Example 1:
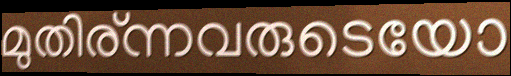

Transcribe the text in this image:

മുതിര്ന്നവരുടെയോ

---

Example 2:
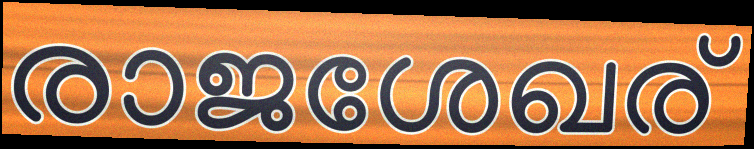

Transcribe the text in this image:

രാജശേഖര്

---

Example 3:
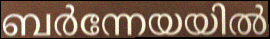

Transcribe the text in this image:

ബർന്നേയയിൽ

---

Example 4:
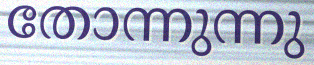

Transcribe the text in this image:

തോന്നുന്നു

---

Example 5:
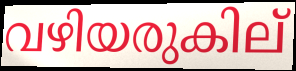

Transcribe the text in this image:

വഴിയരുകില്